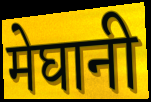
मेघानी